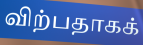
விற்பதாகக்